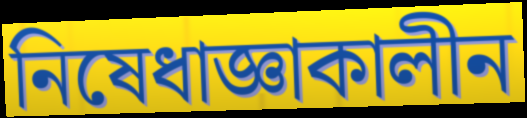
নিষেধাজ্ঞাকালীন